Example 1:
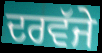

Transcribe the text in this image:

ਦਰਵੱਜੇ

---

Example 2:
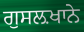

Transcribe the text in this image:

ਗੁਸਲ਼ਖਾਨੇ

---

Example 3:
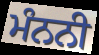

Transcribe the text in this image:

ਮੰਨਨੀ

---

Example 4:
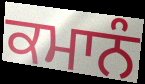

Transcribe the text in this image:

ਕਮਾਨੰ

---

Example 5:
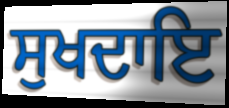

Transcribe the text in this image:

ਸੁਖਦਾਇ